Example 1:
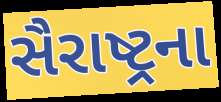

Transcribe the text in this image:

સૈરાષ્ટ્રના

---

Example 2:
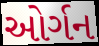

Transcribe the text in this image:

ઓર્ગન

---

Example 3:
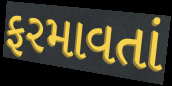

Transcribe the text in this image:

ફરમાવતાં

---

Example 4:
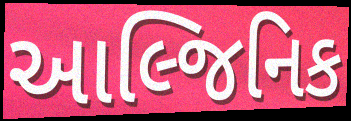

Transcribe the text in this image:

આલ્જિનિક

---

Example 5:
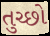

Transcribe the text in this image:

તુચ્છો